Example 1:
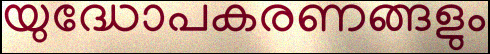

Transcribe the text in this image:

യുദ്ധോപകരണങ്ങളും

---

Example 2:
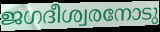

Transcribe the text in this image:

ജഗദീശ്വരനോടു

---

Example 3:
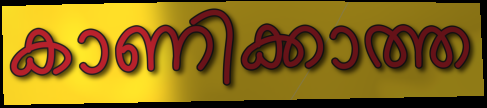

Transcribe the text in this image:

കാണിക്കാത്ത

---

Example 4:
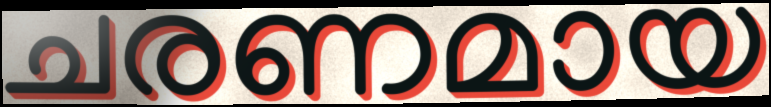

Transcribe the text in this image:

ചരണമായ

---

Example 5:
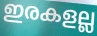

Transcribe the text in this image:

ഇരകളല്ല